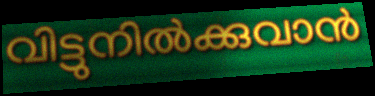
വിട്ടുനിൽക്കുവാൻ